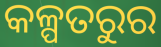
କଳ୍ପତରୁର